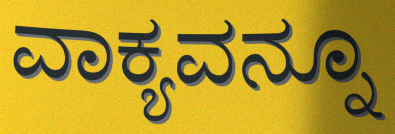
ವಾಕ್ಯವನ್ನೂ